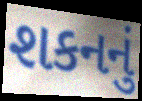
શકનનું